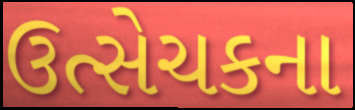
ઉત્સેચકના